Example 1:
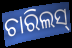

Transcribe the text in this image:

ଚାରିଲସ୍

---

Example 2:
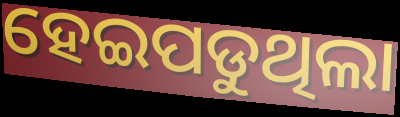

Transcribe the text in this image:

ହେଇପଡୁଥିଲା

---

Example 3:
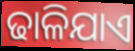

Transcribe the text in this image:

ଢାଳିଯାଏ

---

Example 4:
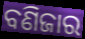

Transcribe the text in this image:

ବଣିଜାର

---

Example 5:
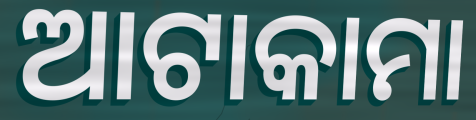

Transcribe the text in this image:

ଆଟାକାମା